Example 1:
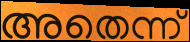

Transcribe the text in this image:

അതെന്ന്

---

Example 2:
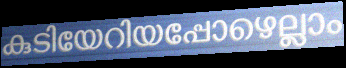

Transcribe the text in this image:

കുടിയേറിയപ്പോഴെല്ലാം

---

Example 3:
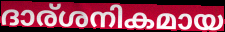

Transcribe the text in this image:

ദാര്ശനികമായ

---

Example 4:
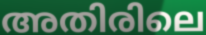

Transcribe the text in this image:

അതിരിലെ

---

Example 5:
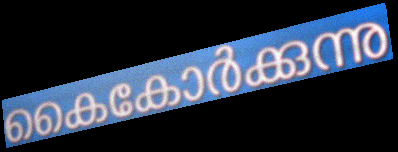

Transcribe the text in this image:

കൈകോർക്കുന്നു